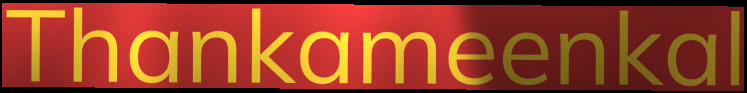
Thankameenkal